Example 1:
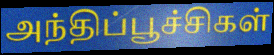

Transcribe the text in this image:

அந்திப்பூச்சிகள்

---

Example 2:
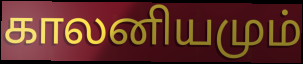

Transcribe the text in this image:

காலனியமும்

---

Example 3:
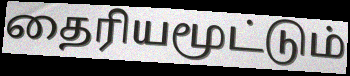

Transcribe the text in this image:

தைரியமூட்டும்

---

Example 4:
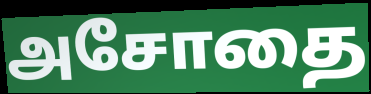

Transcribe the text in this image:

அசோதை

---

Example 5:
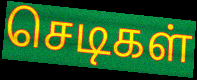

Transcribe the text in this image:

செடிகள்